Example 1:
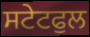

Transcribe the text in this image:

ਸਟੇਟਫੁਲ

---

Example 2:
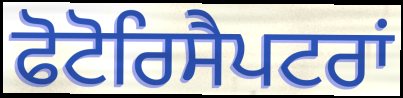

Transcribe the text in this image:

ਫੋਟੋਰਿਸੈਪਟਰਾਂ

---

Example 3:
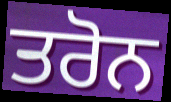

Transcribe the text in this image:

ਤਰੋਨ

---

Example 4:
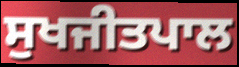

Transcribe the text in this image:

ਸੁਖਜੀਤਪਾਲ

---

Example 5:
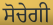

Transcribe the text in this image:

ਸੋਚੇਗੀ